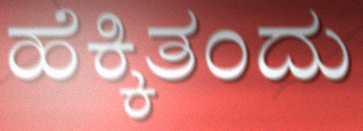
ಹೆಕ್ಕಿತಂದು